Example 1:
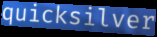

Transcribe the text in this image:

quicksilver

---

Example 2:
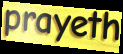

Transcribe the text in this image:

prayeth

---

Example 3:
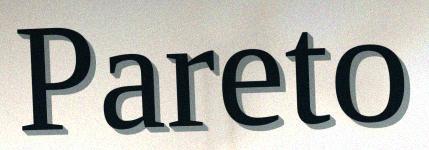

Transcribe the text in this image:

Pareto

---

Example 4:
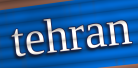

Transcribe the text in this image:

tehran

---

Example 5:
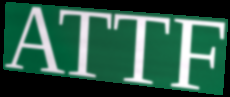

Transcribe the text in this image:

ATTF